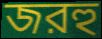
জরহু